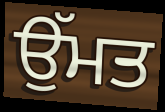
ਉੱਮਤ